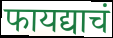
फायद्याचं